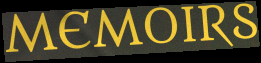
MEMOIRS